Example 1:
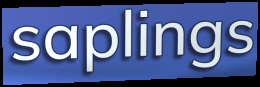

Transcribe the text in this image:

saplings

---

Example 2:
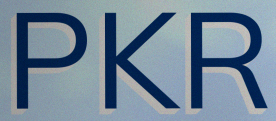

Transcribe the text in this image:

PKR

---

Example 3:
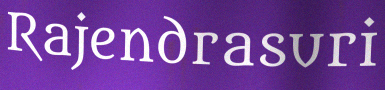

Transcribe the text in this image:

Rajendrasuri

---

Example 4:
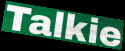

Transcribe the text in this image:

Talkie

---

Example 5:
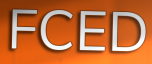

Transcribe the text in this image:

FCED